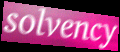
solvency